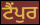
ਟੈਂਪੁਰ